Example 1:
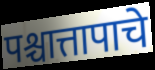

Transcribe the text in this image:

पश्चात्तापाचे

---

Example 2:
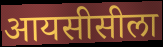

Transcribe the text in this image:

आयसीसीला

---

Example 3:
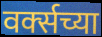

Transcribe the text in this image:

वर्क्‍सच्या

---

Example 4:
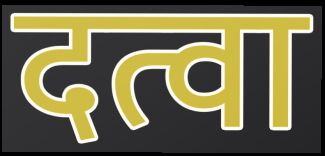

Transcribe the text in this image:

दत्वा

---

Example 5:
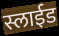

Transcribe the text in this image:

स्लाईड